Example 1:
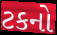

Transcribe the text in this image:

ટકનો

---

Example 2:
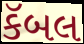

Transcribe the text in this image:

કૅબલ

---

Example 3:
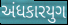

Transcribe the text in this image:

અંધકારયુગ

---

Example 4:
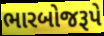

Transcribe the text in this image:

ભારબોજરૂપે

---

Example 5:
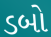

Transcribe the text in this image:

ડબો